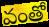
వంతో